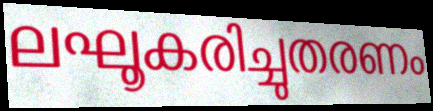
ലഘൂകരിച്ചുതരണം